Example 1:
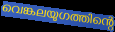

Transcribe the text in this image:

വെങ്കലയുഗത്തിന്റെ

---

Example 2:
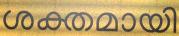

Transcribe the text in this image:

ശക്തമായി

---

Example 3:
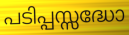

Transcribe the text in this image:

പടിപ്പസ്സദ്ധോ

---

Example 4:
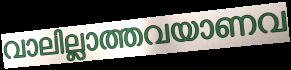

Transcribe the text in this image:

വാലില്ലാത്തവയാണവ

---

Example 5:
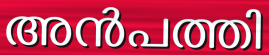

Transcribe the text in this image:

അൻപത്തി